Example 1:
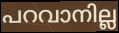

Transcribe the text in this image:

പറവാനില്ല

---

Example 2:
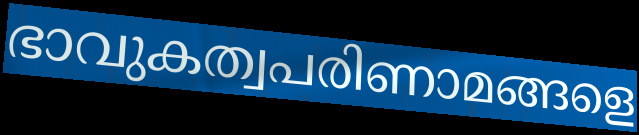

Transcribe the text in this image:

ഭാവുകത്വപരിണാമങ്ങളെ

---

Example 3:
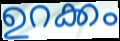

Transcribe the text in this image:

ഉറക്കം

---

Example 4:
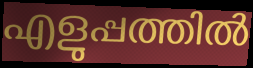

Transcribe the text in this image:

എളുപ്പത്തിൽ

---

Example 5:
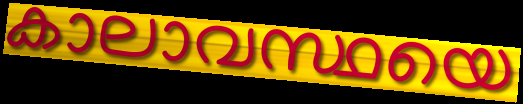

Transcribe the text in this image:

കാലാവസ്ഥയെ